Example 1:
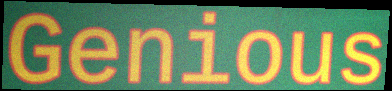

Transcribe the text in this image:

Genious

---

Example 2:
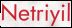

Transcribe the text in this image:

Netriyil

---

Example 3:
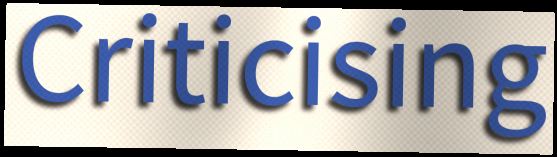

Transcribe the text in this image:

Criticising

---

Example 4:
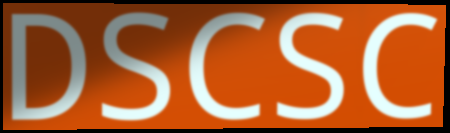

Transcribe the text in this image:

DSCSC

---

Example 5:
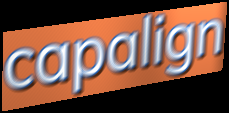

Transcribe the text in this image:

capalign